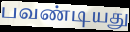
பவண்டியது